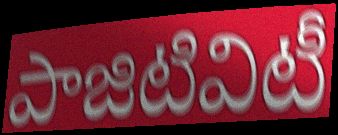
పాజిటివిటీ